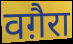
वग़ैरा